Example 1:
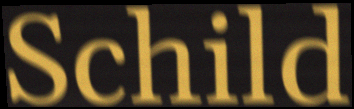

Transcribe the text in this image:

Schild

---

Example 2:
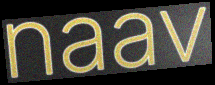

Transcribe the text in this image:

naav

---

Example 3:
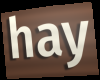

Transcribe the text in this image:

hay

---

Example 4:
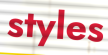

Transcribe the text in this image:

styles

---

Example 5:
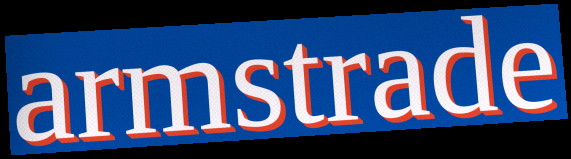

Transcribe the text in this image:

armstrade